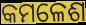
କମଳେଶ